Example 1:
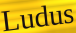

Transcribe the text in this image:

Ludus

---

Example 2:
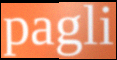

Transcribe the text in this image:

pagli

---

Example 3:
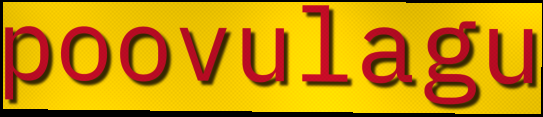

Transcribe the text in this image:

poovulagu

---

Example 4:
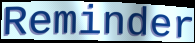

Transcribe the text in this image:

Reminder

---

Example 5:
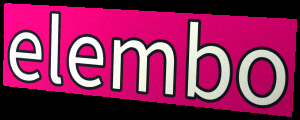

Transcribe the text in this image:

elembo